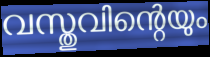
വസ്തുവിന്റെയും